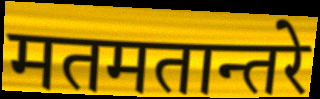
मतमतान्तरे